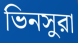
ভিনসুরা